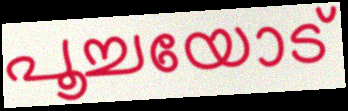
പൂച്ചയോട്